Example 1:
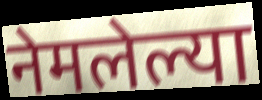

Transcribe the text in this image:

नेमलेल्या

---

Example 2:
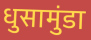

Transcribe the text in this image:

धुसामुंडा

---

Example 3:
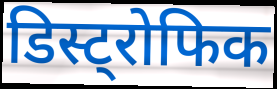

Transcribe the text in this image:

डिस्ट्रोफिक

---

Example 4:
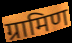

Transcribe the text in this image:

ग्रामिण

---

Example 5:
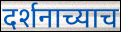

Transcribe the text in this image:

दर्शनाच्याच